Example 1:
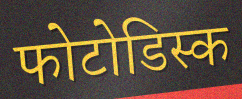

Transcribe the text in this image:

फोटोडिस्क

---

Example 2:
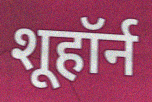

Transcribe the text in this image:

शूहॉर्न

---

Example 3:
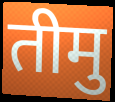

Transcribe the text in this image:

तीमु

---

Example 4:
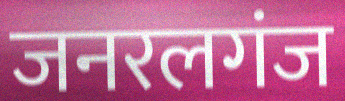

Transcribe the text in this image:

जनरलगंज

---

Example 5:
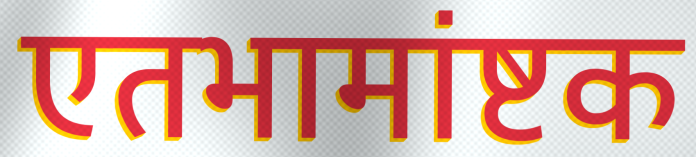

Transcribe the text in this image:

एतभामांष्टक